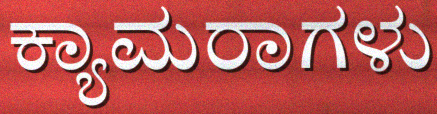
ಕ್ಯಾಮರಾಗಳು